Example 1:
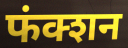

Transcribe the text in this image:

फंक्शन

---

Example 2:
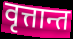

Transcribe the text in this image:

वृत्तान्त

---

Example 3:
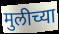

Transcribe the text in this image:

मुलीच्या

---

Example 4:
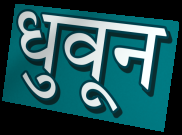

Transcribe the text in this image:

धुवून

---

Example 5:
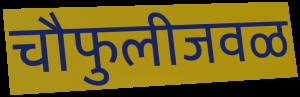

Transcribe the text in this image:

चौफुलीजवळ